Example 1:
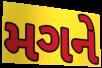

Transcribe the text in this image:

મગને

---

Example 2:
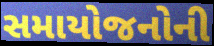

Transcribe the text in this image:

સમાયોજનોની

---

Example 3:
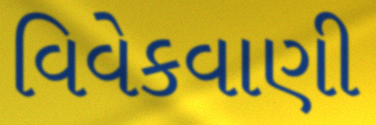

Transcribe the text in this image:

વિવેકવાણી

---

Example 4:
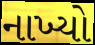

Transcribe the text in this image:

નાખ્યો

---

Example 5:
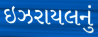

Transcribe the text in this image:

ઇઝરાયલનું